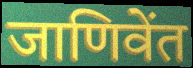
जाणिवेंत